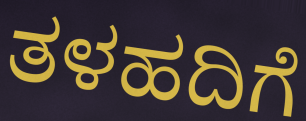
ತಳಹದಿಗೆ